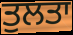
ਤੁਲਤਾ